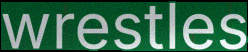
wrestles